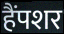
हैंपशर